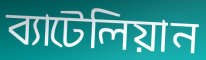
ব্যাটেলিয়ান